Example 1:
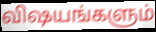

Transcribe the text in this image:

விஷயங்களும்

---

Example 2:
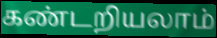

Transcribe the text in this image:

கண்டறியலாம்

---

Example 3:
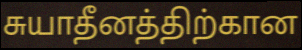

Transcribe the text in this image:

சுயாதீனத்திற்கான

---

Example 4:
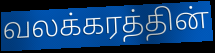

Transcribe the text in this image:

வலக்கரத்தின்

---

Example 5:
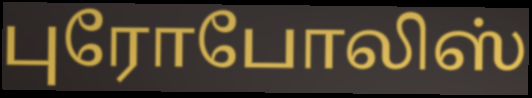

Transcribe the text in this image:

புரோபோலிஸ்